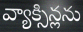
వ్యాక్సిన్లను